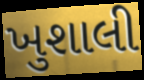
ખુશાલી